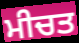
ਮੀਚਤ